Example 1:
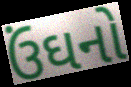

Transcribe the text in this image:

ઉંઘનો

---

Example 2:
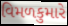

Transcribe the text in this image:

વિમળકુમારે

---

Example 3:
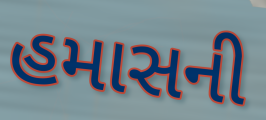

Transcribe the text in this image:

હમાસની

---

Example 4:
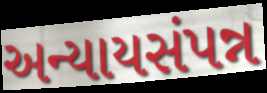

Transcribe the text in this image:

અન્યાયસંપન્ન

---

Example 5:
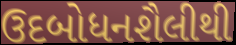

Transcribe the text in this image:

ઉદબોધનશૈલીથી